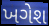
ખગેશ